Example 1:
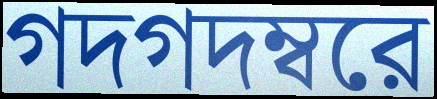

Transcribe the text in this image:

গদগদম্বরে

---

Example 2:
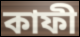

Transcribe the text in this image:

কাফী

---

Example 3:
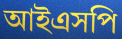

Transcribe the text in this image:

আইএসপি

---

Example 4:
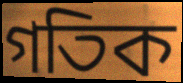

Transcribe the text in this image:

গতিক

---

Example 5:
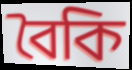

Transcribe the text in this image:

বৈকি